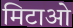
मिटाओ